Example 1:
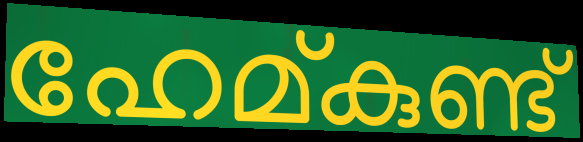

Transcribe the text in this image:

ഹേമ്കുണ്ട്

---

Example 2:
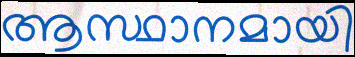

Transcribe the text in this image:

ആസ്ഥാനമായി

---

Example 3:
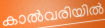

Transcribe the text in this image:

കാൽവരിയിൽ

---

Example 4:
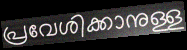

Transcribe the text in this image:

പ്രവേശിക്കാനുള്ള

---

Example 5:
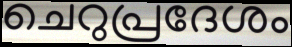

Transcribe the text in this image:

ചെറുപ്രദേശം